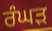
ਰੰਘੜ